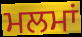
ਮਲਮਾਂ